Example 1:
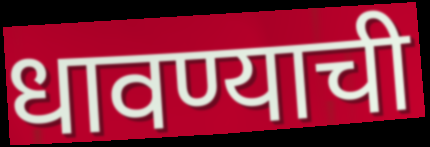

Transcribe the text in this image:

धावण्याची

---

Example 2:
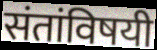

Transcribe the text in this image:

संतांविषयी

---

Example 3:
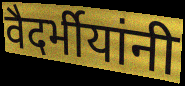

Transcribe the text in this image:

वैदर्भीयांनी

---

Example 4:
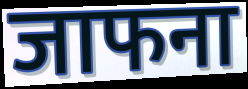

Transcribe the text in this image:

जाफना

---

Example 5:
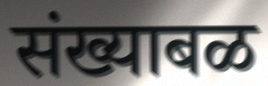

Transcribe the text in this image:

संख्याबळ